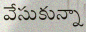
వేసుకున్నా